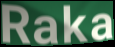
Raka